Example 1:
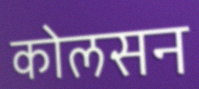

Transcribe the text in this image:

कोलसन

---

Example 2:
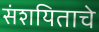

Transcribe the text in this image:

संशयिताचे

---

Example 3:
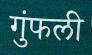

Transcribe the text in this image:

गुंफली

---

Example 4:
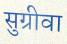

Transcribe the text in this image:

सुग्रीवा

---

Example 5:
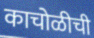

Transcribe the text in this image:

काचोळीची